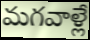
మగవాళ్లే